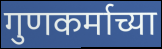
गुणकर्माच्या